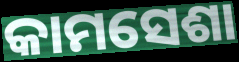
କାମସେଶା